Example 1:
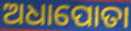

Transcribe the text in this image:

ଅଧାପୋତା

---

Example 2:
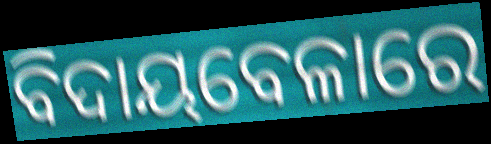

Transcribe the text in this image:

ବିଦାୟବେଳାରେ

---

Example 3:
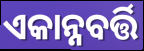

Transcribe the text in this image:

ଏକାନ୍ନବର୍ତ୍ତି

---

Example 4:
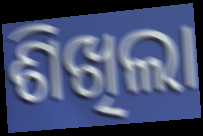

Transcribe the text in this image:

ଶିଖିଲା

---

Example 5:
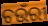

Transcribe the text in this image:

ଚଉଁରୀ